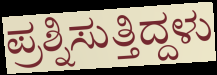
ಪ್ರಶ್ನಿಸುತ್ತಿದ್ದಳು